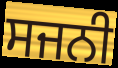
ਸਜਨੀ